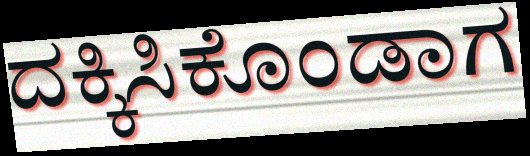
ದಕ್ಕಿಸಿಕೊಂಡಾಗ